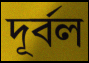
দূর্বল